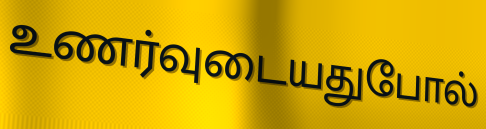
உணர்வுடையதுபோல்